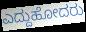
ಎದ್ದುಹೋದರು